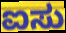
ಐಸು